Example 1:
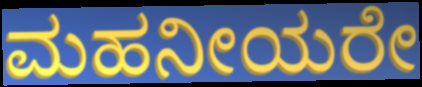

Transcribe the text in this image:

ಮಹನೀಯರೇ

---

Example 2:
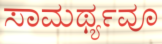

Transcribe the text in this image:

ಸಾಮರ್ಥ್ಯವೂ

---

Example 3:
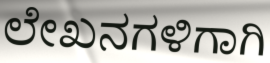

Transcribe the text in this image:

ಲೇಖನಗಳಿಗಾಗಿ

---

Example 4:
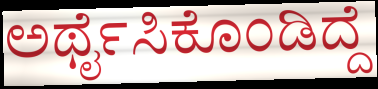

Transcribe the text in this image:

ಅರ್ಥೈಸಿಕೊಂಡಿದ್ದೆ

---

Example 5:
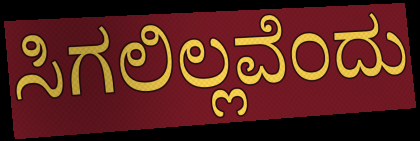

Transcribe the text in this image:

ಸಿಗಲಿಲ್ಲವೆಂದು